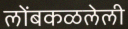
लोंबकळलेली